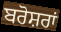
ਬਰੋਸ਼ਰਾਂ